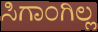
ಸಿಗಾಂಗಿಲ್ಲ